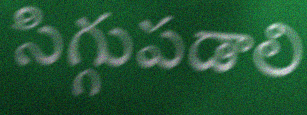
సిగ్గుపడాలి